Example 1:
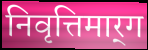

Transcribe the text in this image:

निवृत्तिमार्ग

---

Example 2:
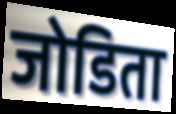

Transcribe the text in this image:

जोडिता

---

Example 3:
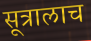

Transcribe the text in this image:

सूत्रालाच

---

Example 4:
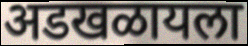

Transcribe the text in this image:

अडखळायला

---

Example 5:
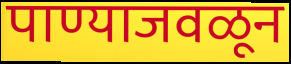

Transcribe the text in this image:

पाण्याजवळून